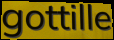
gottille